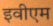
इवीएम